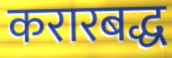
करारबद्ध